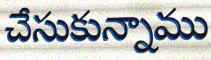
చేసుకున్నాము